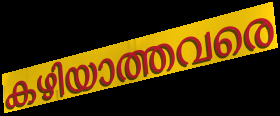
കഴിയാത്തവരെ